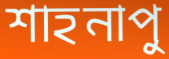
শাহনাপু